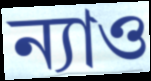
ন্যাও